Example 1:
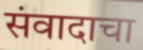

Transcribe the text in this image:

संवादाचा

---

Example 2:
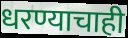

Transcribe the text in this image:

धरण्याचाही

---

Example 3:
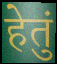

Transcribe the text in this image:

हेतुं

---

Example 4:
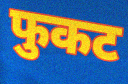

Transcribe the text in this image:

फुकट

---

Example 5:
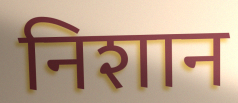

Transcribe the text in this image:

निशान